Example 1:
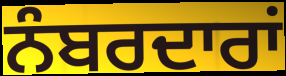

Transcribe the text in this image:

ਨੰਬਰਦਾਰਾਂ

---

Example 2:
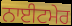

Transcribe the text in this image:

ਨਾਈਟਮੇਰ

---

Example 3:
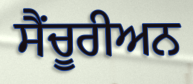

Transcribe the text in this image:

ਸੈਂਚੂਰੀਅਨ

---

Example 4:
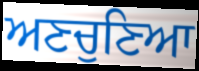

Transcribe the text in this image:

ਅਣਚੁਣਿਆ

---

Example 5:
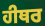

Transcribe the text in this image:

ਹੀਥਰ